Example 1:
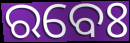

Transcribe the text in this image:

ରବେଃ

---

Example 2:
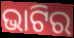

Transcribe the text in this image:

ଭାଟିର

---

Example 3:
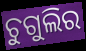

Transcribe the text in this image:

ଚୁଗୁଲିର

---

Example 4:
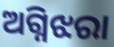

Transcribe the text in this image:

ଅଗ୍ନିଝରା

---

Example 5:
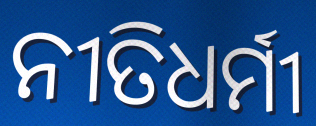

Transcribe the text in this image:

ନୀତିଧର୍ମୀ